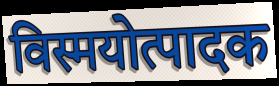
विस्मयोत्पादक